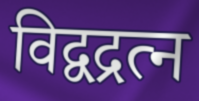
विद्वद्रत्न